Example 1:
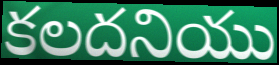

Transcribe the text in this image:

కలదనియు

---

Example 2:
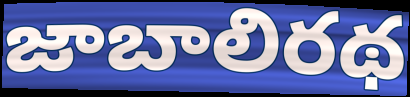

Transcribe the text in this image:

జాబాలిరథ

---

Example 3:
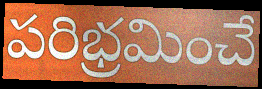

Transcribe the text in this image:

పరిభ్రమించే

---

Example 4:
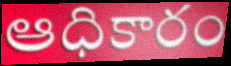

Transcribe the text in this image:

ఆధికారం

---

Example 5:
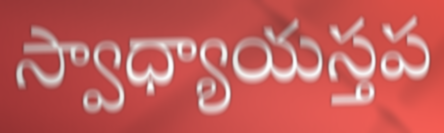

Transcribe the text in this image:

స్వాధ్యాయస్తప